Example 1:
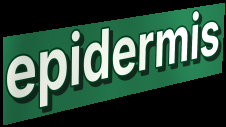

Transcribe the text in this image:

epidermis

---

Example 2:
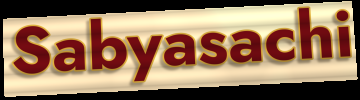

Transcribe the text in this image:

Sabyasachi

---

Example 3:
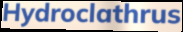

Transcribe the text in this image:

Hydroclathrus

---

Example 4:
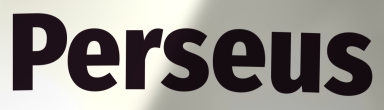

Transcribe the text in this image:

Perseus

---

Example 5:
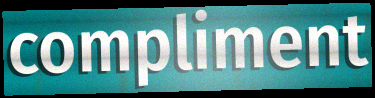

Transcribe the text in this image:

compliment